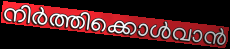
നിർത്തിക്കൊൾവാൻ